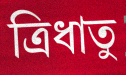
ত্রিধাতু